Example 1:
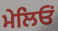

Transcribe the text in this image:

ਮੇਲਿਓਂ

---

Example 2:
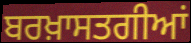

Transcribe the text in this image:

ਬਰਖ਼ਾਸਤਗੀਆਂ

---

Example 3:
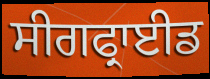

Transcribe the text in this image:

ਸੀਗਫ੍ਰਾਈਡ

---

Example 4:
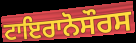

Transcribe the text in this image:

ਟਾਇਰਾਨੋਸੌਰਸ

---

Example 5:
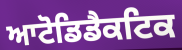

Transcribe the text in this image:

ਆਟੋਡਿਡੈਕਟਿਕ